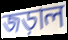
জড়াল